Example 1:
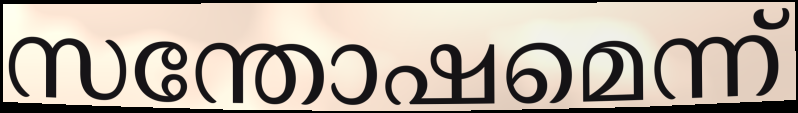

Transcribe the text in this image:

സന്തോഷമെന്ന്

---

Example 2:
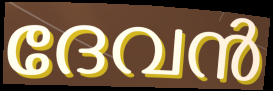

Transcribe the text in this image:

ദേവൻ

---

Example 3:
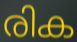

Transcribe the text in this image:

രിക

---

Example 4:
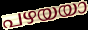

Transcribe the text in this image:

പഴയയാ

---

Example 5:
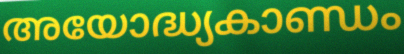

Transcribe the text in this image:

അയോദ്ധ്യകാണ്ഡം